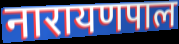
नारायणपाल